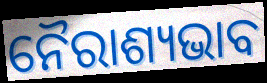
ନୈରାଶ୍ୟଭାବ